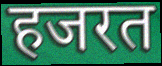
हजरत